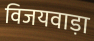
विजयवाड़ा